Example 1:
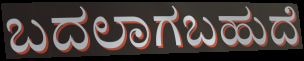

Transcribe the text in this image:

ಬದಲಾಗಬಹುದೆ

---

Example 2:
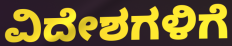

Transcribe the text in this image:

ವಿದೇಶಗಳಿಗೆ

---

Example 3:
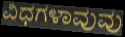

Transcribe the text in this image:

ವಿಧಗಳಾವುವು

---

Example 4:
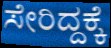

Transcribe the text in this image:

ಸೇರಿದ್ದಕ್ಕೆ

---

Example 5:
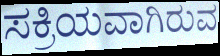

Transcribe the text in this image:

ಸಕ್ರಿಯವಾಗಿರುವ